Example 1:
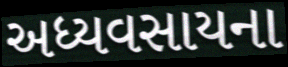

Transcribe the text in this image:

અધ્યવસાયના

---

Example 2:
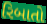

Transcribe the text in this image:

રિબાતો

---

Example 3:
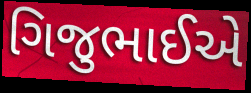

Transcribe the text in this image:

ગિજુભાઈએ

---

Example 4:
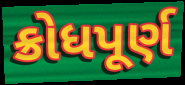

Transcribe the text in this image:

ક્રોધપૂર્ણ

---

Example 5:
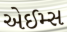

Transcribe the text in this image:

એઈમ્સ